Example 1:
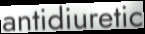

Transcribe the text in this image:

antidiuretic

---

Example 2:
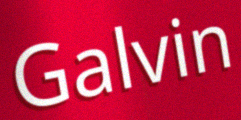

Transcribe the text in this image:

Galvin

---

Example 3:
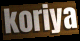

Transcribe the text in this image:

koriya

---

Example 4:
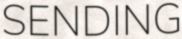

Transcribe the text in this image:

SENDING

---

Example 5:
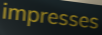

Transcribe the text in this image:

impresses